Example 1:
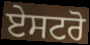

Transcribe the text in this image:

ਏਸਟਰੋ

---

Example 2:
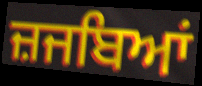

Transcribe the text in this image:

ਜ਼ਜਬਿਆਂ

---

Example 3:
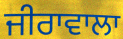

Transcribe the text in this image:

ਜੀਰਾਵਾਲਾ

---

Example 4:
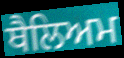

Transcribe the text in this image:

ਥੈਲਿਅਮ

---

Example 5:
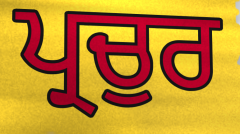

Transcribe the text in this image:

ਪ੍ਰਚੁਰ